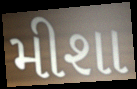
મીશા